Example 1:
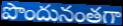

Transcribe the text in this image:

పొందునంతగా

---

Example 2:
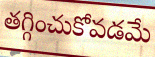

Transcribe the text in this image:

తగ్గించుకోవడమే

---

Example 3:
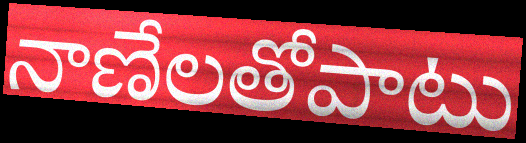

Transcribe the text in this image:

నాణేలతోపాటు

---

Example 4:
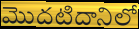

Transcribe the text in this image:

మొదటిదానిలో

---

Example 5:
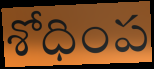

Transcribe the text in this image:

శోధింప